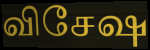
விசேஷ